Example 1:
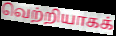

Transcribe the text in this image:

வெற்றியாகக்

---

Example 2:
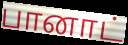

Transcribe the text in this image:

பானாட்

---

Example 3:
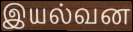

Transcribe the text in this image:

இயல்வன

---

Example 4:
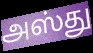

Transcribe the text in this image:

அஸ்து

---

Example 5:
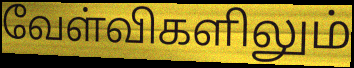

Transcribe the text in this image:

வேள்விகளிலும்